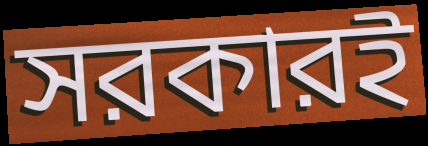
সরকারই